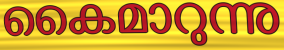
കൈമാറുന്നു